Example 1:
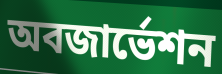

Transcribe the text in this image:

অবজার্ভেশন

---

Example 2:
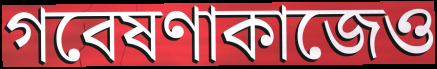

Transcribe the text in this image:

গবেষণাকাজেও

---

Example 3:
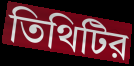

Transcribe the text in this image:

তিথিটির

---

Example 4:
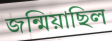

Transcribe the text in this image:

জন্মিয়াছিল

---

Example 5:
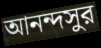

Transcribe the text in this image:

আনন্দসুর